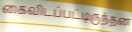
கைவிடப்பட்டிருந்தன